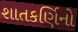
શાતકર્ણિનો